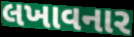
લખાવનાર